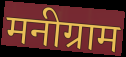
मनीग्राम